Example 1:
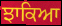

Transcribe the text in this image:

ਝਾਕਿਆ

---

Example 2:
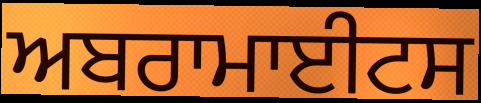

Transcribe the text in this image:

ਅਬਰਾਮਾਈਟਸ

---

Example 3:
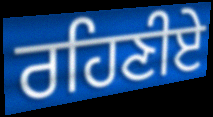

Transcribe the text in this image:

ਰਹਿਣੀਏ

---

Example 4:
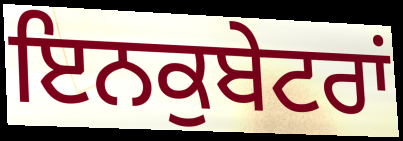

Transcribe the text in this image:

ਇਨਕੁਬੇਟਰਾਂ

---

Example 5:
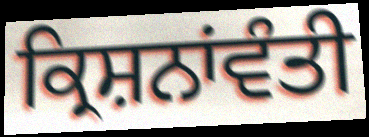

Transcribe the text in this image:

ਕ੍ਰਿਸ਼ਨਾਂਵੰਤੀ